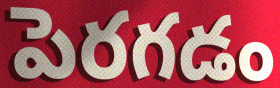
పెరగడం